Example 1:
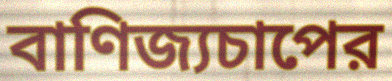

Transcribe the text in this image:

বাণিজ্যচাপের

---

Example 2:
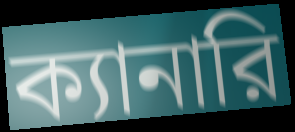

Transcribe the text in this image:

ক্যানারি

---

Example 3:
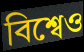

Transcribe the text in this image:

বিশ্বেও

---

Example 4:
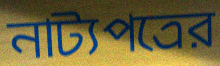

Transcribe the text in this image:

নাট্যপত্রের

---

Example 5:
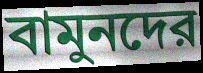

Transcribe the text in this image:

বামুনদের